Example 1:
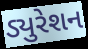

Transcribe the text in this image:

ડ્યુરેશન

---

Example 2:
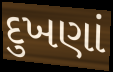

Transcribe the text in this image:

દુખણાં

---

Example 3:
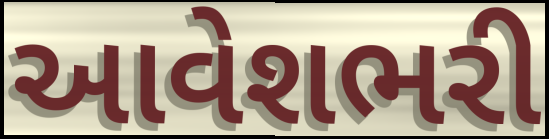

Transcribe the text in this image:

આવેશભરી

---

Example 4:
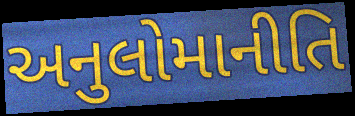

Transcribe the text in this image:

અનુલોમાનીતિ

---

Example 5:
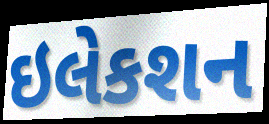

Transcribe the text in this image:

ઇલેકશન